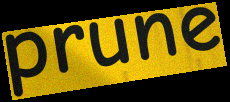
prune